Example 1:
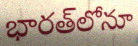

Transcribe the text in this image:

భారత్‌లోనూ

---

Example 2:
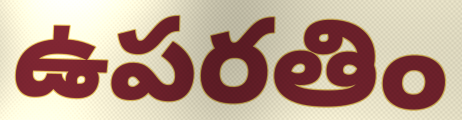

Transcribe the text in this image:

ఉపరతిం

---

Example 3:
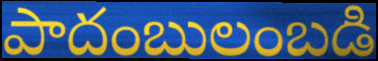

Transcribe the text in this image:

పాదంబులంబడి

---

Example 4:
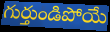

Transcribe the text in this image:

గుర్తుండిపోయే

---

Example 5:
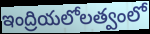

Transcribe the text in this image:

ఇంద్రియలోలత్వంలో